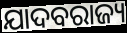
ଯାଦବରାଜ୍ୟ